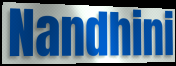
Nandhini